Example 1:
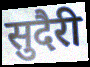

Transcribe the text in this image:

सुदैरी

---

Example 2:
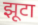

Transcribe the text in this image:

झूटा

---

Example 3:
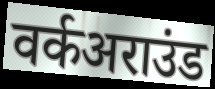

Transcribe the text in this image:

वर्कअराउंड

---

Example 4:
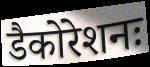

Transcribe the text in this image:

डैकोरेशनः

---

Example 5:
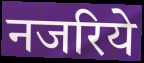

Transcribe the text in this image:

नजरिये